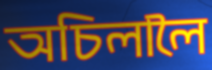
অচিলালৈ